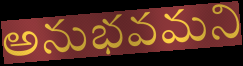
అనుభవమని